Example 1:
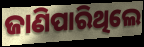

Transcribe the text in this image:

ଜାଣିପାରିଥିଲେ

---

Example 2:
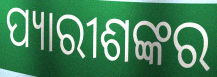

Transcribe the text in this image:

ପ୍ୟାରୀଶଙ୍କର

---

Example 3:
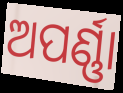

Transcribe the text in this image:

ଅପର୍ଣ୍ଣା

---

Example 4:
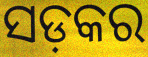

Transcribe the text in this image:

ସଡ଼କର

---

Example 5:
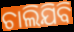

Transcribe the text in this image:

ଚାଲିଯିବି